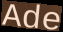
Ade